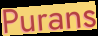
Purans